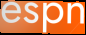
espn